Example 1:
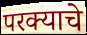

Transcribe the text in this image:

परक्याचे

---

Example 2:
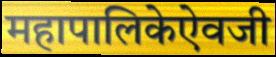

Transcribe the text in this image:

महापालिकेऐवजी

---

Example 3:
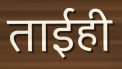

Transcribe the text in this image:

ताईही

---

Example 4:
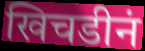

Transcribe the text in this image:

खिचडीनं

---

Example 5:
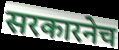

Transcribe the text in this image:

सरकारनेच